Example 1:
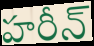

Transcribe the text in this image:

హరీన్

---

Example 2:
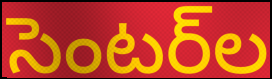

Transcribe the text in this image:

సెంటర్‌ల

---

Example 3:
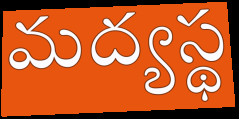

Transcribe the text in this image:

మద్యస్థ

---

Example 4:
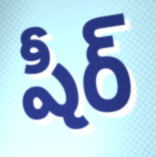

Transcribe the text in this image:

షీర్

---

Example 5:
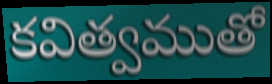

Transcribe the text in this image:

కవిత్వముతో